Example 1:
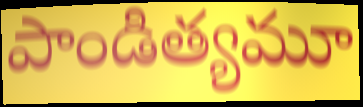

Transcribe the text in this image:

పాండిత్యమూ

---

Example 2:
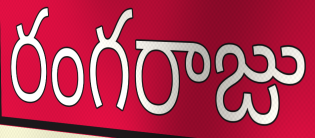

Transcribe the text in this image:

రంగరాజు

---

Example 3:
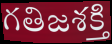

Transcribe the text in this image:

గతిజశక్తి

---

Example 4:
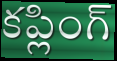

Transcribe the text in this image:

కప్లింగ్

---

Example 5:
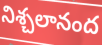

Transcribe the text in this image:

నిశ్చలానంద